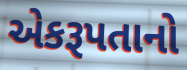
એકરૂપતાનો